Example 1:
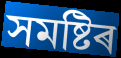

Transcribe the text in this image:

সমষ্টিৰ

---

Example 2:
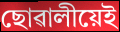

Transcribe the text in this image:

ছোৱালীয়েই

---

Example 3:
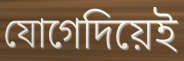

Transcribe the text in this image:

যোগেদিয়েই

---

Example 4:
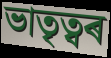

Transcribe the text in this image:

ভাতৃত্বৰ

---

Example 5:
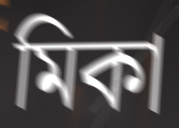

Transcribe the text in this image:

মিকা